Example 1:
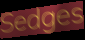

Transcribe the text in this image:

Sedges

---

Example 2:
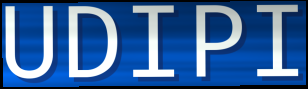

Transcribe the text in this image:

UDIPI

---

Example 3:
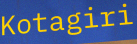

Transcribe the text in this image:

Kotagiri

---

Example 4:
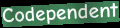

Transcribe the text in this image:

Codependent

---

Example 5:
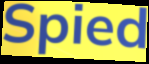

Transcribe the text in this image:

Spied